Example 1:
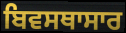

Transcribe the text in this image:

ਬਿਵਸਥਾਸਾਰ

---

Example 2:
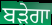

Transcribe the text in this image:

ਬੜੇਗਾ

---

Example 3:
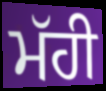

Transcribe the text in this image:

ਮੱਹੀ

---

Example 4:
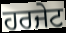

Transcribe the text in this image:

ਹਰਜੇਟ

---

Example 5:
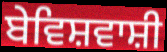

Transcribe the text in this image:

ਬੇਵਿਸ਼ਵਾਸ਼ੀ